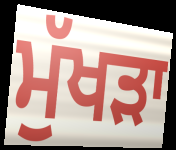
ਮੁੱਖੜਾ